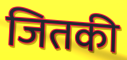
जितकी